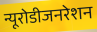
न्यूरोडीजनरेशन